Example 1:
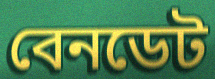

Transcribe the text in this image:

বেনডেট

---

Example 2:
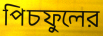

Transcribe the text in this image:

পিচফুলের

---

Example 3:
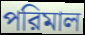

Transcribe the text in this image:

পরিমাল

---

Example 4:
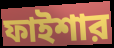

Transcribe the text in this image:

ফাইশার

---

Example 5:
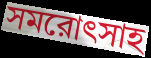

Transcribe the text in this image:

সমরোৎসাহ